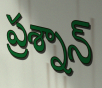
ప్రశ్నాన్